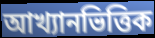
আখ্যানভিত্তিক